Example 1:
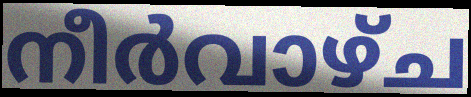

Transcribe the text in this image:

നീർവാഴ്ച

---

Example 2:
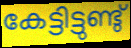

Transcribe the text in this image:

കേട്ടിട്ടുണ്ടു്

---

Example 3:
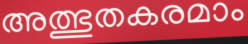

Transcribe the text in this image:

അത്ഭുതകരമാം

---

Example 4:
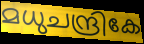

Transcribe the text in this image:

മധുചന്ദ്രികേ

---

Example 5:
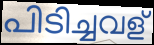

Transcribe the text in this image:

പിടിച്ചവള്